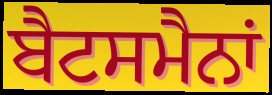
ਬੈਟਸਮੈਨਾਂ